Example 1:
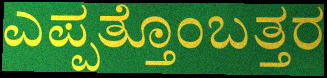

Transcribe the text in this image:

ಎಪ್ಪತ್ತೊಂಬತ್ತರ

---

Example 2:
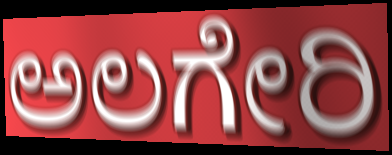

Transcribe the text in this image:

ಅಲಗೇರಿ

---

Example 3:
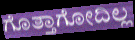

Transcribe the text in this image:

ಗೊತ್ತಾಗೋದಿಲ್ಲ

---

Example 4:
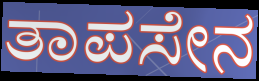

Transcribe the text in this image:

ತಾಪಸೇನ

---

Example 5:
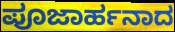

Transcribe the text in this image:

ಪೂಜಾರ್ಹನಾದ